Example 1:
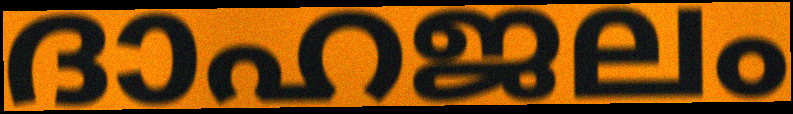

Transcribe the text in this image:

ദാഹജലം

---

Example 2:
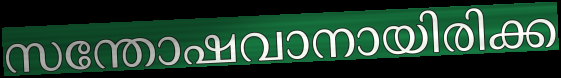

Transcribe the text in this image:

സന്തോഷവാനായിരിക്ക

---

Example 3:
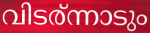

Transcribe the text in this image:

വിടര്ന്നാടും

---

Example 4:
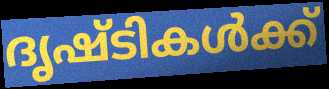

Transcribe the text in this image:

ദൃഷ്ടികൾക്ക്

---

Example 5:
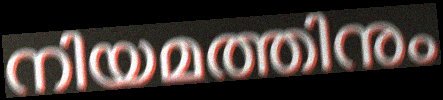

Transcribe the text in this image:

നിയമത്തിനും